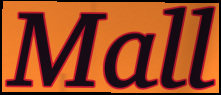
Mall